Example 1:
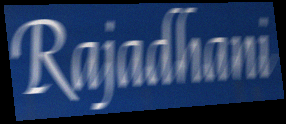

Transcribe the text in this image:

Rajadhani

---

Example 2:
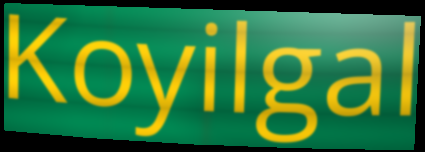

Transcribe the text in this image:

Koyilgal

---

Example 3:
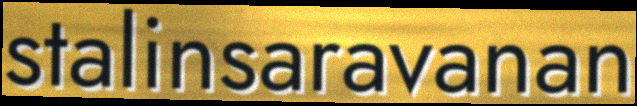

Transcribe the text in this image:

stalinsaravanan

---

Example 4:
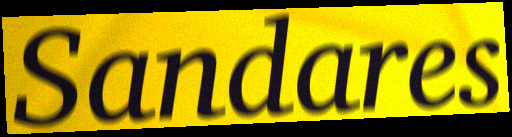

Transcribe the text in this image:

Sandares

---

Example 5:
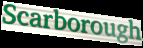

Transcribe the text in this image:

Scarborough